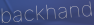
backhand